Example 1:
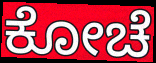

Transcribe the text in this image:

ಕೋಚೆ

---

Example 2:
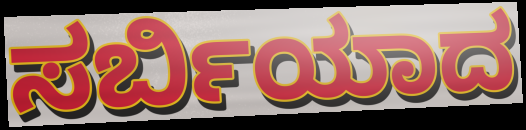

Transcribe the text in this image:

ಸರ್ಬಿಯಾದ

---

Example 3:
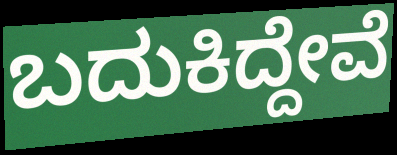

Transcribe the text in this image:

ಬದುಕಿದ್ದೇವೆ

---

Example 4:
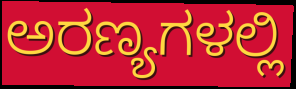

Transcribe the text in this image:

ಅರಣ್ಯಗಳಲ್ಲಿ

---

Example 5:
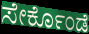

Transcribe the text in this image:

ಸೇರ್ಕೊಂಡೆ